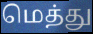
மெத்து